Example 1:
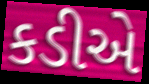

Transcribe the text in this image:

કડીએ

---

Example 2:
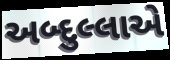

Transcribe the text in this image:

અબ્દુલ્લાએ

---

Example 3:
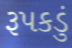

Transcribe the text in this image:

રૂપકડું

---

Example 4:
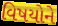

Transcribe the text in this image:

વિષયોને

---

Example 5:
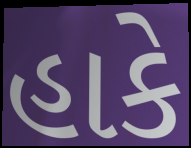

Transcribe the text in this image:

હાકે